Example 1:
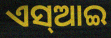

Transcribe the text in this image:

ଏସ୍ଆଇ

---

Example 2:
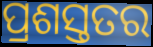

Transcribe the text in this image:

ପ୍ରଶସ୍ତତର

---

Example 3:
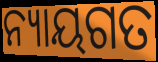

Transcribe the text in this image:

ନ୍ୟାୟଗତ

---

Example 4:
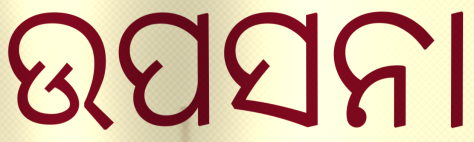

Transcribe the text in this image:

ଉପସନା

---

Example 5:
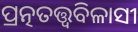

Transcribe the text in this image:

ପ୍ରତ୍ନତତ୍ତ୍ବବିଳାସୀ